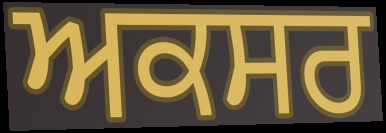
ਅਕਸਰ